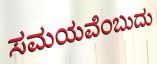
ಸಮಯವೆಂಬುದು